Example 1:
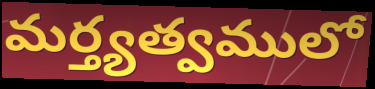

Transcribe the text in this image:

మర్త్యత్వములో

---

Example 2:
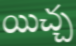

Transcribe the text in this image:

యిచ్చ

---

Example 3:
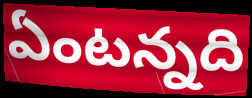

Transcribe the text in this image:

ఏంటన్నది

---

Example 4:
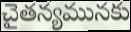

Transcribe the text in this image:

చైతన్యమునకు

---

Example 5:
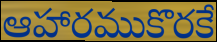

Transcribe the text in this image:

ఆహారముకొరకే